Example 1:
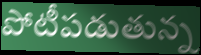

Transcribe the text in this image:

పోటీపడుతున్న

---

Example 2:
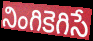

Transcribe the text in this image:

నింగికెగిసే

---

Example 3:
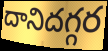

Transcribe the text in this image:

దానిదగ్గర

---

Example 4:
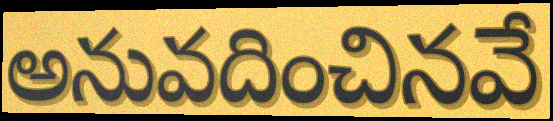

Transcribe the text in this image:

అనువదించినవే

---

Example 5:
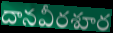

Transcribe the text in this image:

దానవీరశూర